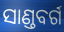
ସାଣ୍ଡବର୍ଗ